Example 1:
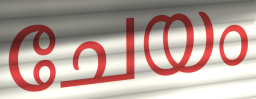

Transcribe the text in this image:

ചേയം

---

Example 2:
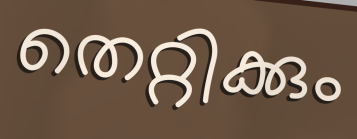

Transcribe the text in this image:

തെറ്റിക്കും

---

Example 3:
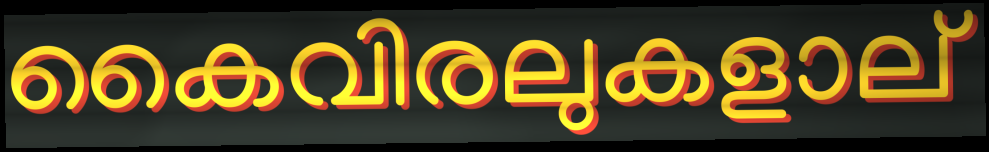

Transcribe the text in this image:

കൈവിരലുകളാല്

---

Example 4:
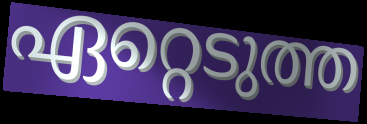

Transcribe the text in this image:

ഏറ്റെടുത്ത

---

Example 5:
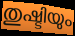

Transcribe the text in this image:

തുഷ്ടിയും